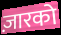
ज़ारको